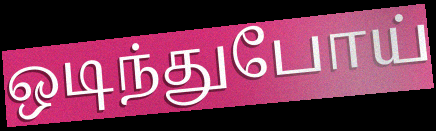
ஒடிந்துபோய்